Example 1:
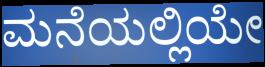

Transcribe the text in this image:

ಮನೆಯಲ್ಲಿಯೇ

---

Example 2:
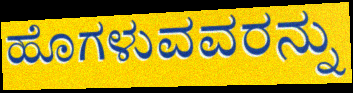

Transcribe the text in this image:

ಹೊಗಳುವವರನ್ನು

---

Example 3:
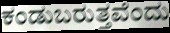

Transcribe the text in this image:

ಕಂಡುಬರುತ್ತವೆಂದು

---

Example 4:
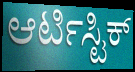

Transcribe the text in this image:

ಆರ್ಟಿಸ್ಟಿಕ್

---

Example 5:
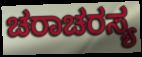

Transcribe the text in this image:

ಚರಾಚರಸ್ಯ